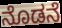
ನೊಡನೆ